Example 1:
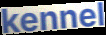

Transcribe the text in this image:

kennel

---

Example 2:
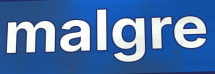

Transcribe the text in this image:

malgre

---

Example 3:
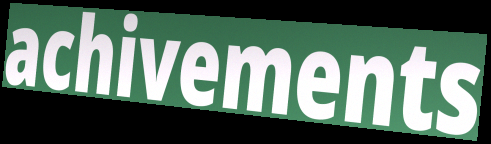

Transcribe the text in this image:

achivements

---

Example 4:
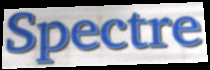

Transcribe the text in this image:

Spectre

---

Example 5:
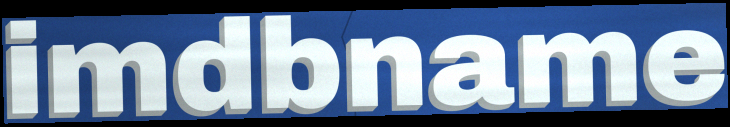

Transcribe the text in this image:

imdbname